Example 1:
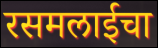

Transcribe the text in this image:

रसमलाईचा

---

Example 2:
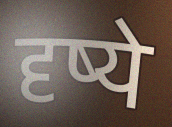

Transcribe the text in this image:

दृष्ये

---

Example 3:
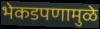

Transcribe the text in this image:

भेकडपणामुळे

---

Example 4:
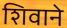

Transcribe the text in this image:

शिवाने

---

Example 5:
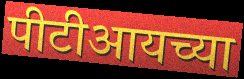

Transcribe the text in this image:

पीटीआयच्या